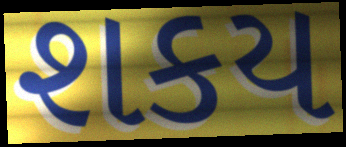
શકય